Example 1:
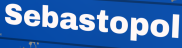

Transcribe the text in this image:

Sebastopol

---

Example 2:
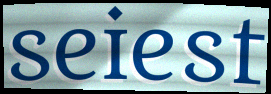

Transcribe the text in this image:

seiest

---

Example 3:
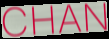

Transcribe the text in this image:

CHAN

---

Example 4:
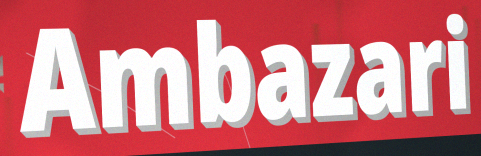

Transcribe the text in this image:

Ambazari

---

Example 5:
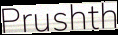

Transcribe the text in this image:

Prushth